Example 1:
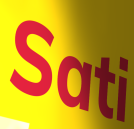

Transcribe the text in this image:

Sati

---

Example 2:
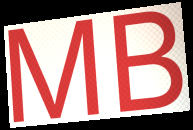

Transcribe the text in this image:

MB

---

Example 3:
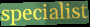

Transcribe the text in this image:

specialist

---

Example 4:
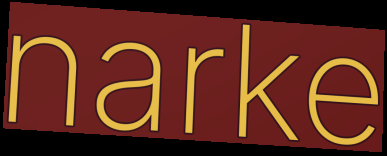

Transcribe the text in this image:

narke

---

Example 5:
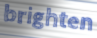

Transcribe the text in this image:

brighten